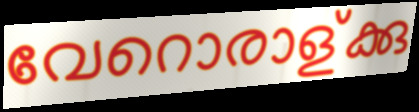
വേറൊരാള്ക്കു